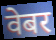
वेबर